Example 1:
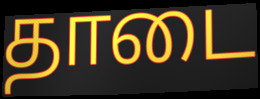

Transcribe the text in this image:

தாடை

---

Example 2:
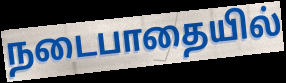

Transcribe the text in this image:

நடைபாதையில்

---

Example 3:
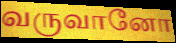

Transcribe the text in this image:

வருவானோ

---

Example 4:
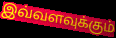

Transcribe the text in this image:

இவ்வளவுக்கும்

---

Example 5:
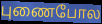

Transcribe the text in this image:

புணைபோல